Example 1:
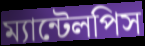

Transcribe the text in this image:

ম্যান্টেলপিস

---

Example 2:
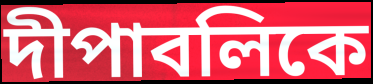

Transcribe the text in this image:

দীপাবলিকে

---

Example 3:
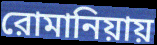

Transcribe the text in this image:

রোমানিয়ায়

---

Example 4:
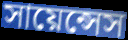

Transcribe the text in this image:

সায়েন্সেস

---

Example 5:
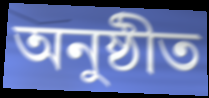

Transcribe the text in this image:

অনুষ্ঠীত